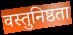
वस्तुनिष्ठता